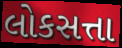
લોકસત્તા